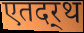
एतदर्थ